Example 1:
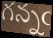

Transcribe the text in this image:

గన్నఁ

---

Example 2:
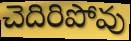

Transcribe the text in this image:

చెదిరిపోవు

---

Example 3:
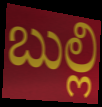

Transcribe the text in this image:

బుల్లి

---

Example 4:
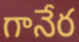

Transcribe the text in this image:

గానేర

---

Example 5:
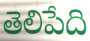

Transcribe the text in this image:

తెలిపేది